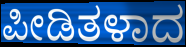
ಪೀಡಿತಳಾದ